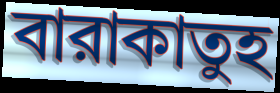
বারাকাতুহ